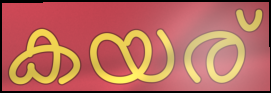
കയര്